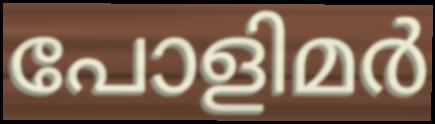
പോളിമർ